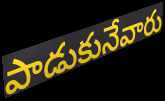
పాడుకునేవారు